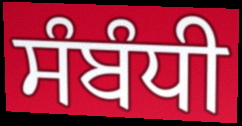
ਸੰਬੰਧੀ